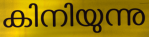
കിനിയുന്നു